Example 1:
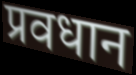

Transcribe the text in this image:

प्रवधान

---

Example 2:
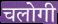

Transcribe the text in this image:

चलोगी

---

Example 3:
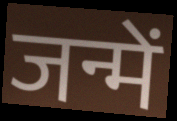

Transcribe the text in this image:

जन्में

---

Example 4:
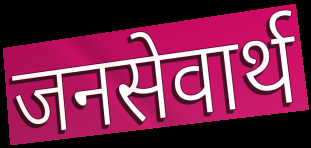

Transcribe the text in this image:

जनसेवार्थ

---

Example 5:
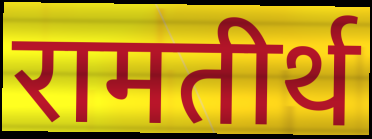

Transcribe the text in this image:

रामतीर्थ